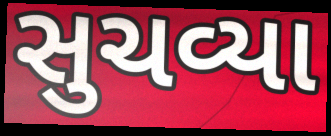
સુચવ્યા